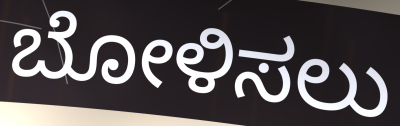
ಬೋಳಿಸಲು